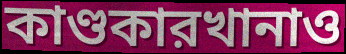
কাণ্ডকারখানাও